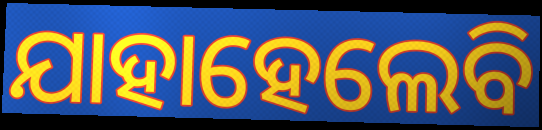
ଯାହାହେଲେବି